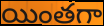
యింతగా